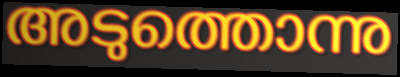
അടുത്തൊന്നു